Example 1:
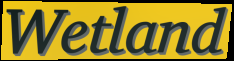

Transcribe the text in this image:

Wetland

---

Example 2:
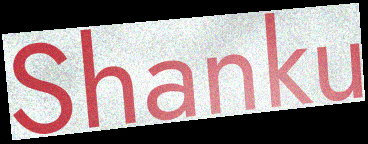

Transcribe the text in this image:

Shanku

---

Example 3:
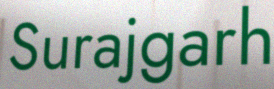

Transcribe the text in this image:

Surajgarh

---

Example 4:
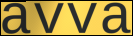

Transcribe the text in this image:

avva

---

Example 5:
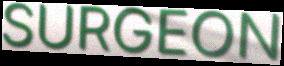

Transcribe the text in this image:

SURGEON